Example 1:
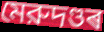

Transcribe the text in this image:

মেৰুদণ্ডৰ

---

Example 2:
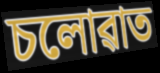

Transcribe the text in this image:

চলোৱাত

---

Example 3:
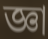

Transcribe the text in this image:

জ্ঞা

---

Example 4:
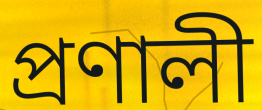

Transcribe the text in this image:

প্ৰণালী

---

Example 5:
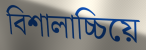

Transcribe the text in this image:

বিশালাচ্চিয়ে